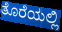
ತೊರೆಯಲ್ಲಿ